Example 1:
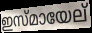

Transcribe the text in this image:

ഇസ്മായേല്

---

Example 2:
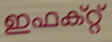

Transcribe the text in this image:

ഇഫക്റ്റ്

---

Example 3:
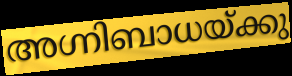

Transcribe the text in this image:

അഗ്നിബാധയ്ക്കു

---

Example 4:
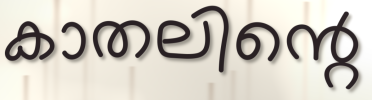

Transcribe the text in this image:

കാതലിന്റെ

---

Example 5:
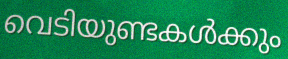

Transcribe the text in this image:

വെടിയുണ്ടകൾക്കും